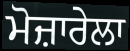
ਮੋਜ਼ਾਰੇਲਾ